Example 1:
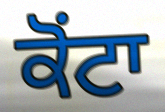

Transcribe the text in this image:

ਕੋਂਟਾ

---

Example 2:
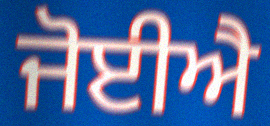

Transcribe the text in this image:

ਜੋਈਐ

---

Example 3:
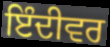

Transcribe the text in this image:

ਇੰਦੀਵਰ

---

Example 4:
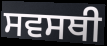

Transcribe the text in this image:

ਸਵਸਥੀ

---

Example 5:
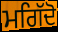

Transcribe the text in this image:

ਮਗਿੱਦੋ